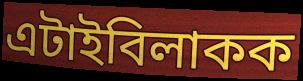
এটাইবিলাকক